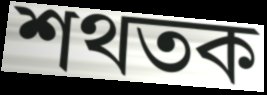
শথতক